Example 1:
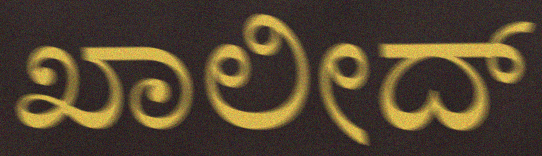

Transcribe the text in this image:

ಖಾಲೀದ್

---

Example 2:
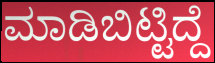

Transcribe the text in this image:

ಮಾಡಿಬಿಟ್ಟಿದ್ದೆ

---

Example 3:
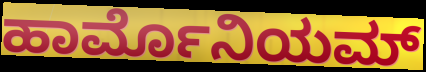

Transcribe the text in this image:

ಹಾರ್ಮೊನಿಯಮ್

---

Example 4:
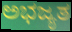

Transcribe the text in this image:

ಅಭಜ್ಯತ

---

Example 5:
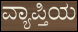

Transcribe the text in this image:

ವ್ಯಾಪ್ತಿಯ